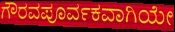
ಗೌರವಪೂರ್ವಕವಾಗಿಯೇ